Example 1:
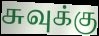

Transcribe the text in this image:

சுவுக்கு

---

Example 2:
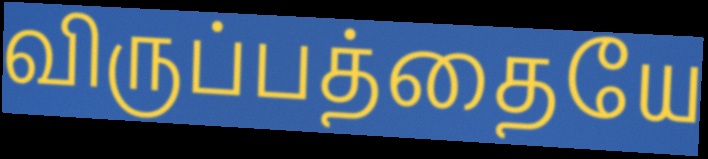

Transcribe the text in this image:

விருப்பத்தையே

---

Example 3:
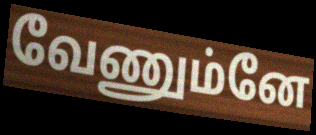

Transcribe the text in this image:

வேணும்னே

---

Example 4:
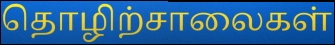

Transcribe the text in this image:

தொழிற்சாலைகள்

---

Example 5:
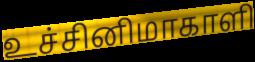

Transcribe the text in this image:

உச்சினிமாகாளி